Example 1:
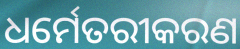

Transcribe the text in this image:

ଧର୍ମେତରୀକରଣ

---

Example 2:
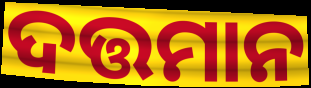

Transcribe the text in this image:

ଦତ୍ତମାନ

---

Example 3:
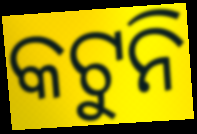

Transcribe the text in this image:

କଟୁନି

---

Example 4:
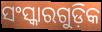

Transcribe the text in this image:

ସଂସ୍କାରଗୁଡ଼ିକ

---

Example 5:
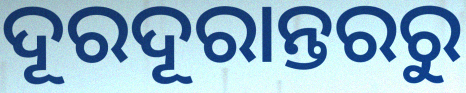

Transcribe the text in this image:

ଦୂରଦୂରାନ୍ତରରୁ